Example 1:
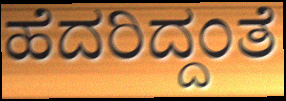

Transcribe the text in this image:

ಹೆದರಿದ್ದಂತೆ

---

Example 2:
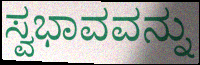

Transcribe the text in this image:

ಸ್ವಭಾವವನ್ನು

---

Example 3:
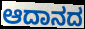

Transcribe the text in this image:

ಆದಾನದ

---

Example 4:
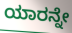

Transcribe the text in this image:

ಯಾರನ್ನೇ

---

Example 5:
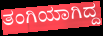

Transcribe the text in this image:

ತಂಗಿಯಾಗಿದ್ದ